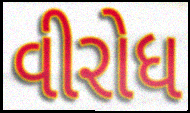
વીરોધ